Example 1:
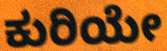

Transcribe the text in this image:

ಕುರಿಯೇ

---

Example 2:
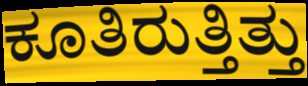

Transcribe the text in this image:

ಕೂತಿರುತ್ತಿತ್ತು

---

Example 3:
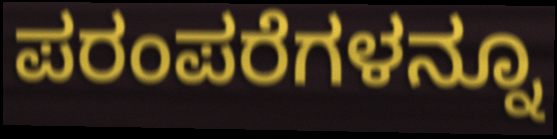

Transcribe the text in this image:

ಪರಂಪರೆಗಳನ್ನೂ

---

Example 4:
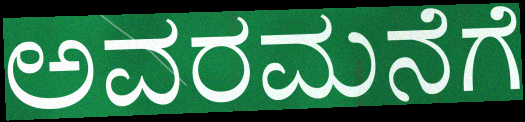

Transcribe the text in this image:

ಅವರಮನೆಗೆ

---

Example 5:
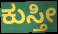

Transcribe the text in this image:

ಕುಸ್ತೀ